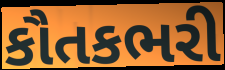
કૌતકભરી